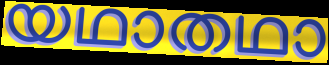
യഥാതഥാ